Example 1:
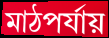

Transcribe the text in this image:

মাঠপর্যায়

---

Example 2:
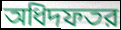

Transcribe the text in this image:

অধিদফতর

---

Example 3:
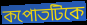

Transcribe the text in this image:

কপোতটিকে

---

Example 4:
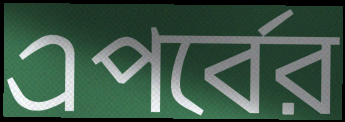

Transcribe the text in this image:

এপর্বের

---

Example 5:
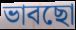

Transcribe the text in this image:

ভাবছো